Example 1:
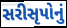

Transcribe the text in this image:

સરીસૃપોનું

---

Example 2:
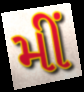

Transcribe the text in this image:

મીં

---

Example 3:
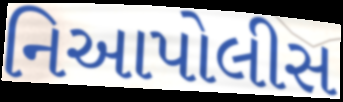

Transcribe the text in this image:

નિઆપોલીસ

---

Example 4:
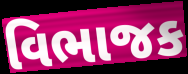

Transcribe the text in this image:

વિભાજક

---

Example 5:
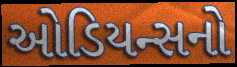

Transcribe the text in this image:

ઓડિયન્સનો